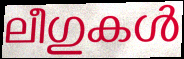
ലീഗുകൾ